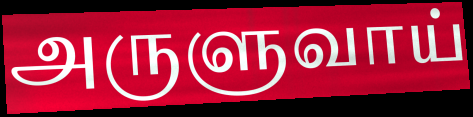
அருளுவாய்